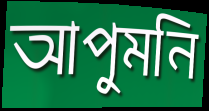
আপুমনি